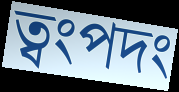
ত্বংপদং